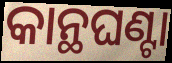
କାନ୍ଥଘଣ୍ଟା